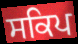
ਸਕਿਪ